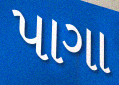
પાગા